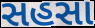
સહસા